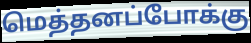
மெத்தனப்போக்கு